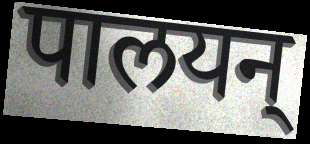
पालयन्